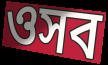
ওসব